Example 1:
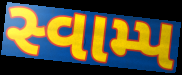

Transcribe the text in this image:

સ્વામ્પ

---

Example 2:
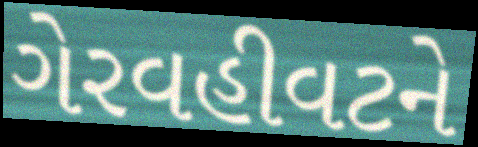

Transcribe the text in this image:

ગેરવહીવટને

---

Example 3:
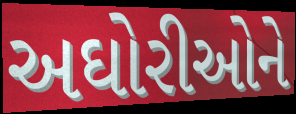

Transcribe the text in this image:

અઘોરીઓને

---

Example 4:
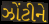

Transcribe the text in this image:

ઝોંટીને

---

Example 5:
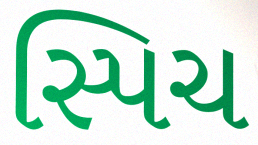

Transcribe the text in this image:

સ્પિચ